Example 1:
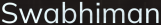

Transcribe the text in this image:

Swabhiman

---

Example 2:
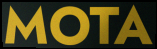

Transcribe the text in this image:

MOTA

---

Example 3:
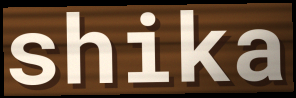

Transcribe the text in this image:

shika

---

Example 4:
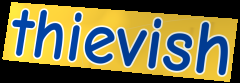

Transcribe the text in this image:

thievish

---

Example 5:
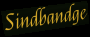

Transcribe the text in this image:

Sindbandge